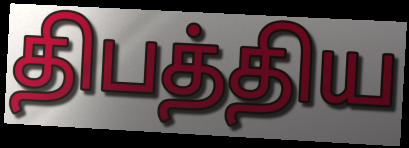
திபத்திய